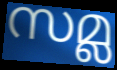
സമ്ല